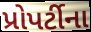
પ્રોપર્ટીના